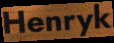
Henryk